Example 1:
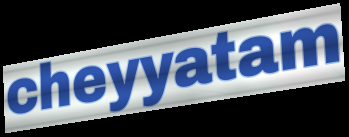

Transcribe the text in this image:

cheyyatam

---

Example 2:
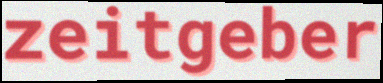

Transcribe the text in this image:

zeitgeber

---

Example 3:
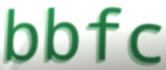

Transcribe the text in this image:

bbfc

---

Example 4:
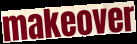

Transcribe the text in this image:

makeover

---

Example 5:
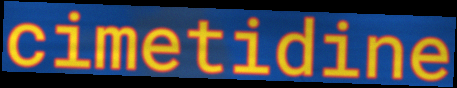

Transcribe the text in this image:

cimetidine